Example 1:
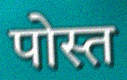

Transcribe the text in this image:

पोस्त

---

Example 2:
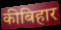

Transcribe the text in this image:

कीबिहार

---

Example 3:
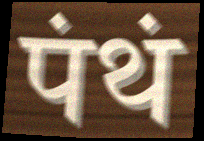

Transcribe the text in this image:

पंथं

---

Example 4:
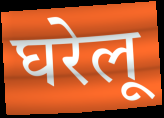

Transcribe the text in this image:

घरेलू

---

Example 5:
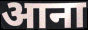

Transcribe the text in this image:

आना